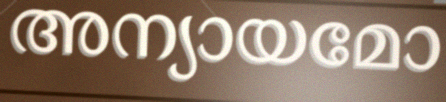
അന്യായമോ